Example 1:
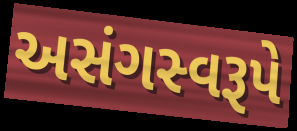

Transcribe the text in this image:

અસંગસ્વરૂપે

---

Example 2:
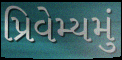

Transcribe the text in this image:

પ્રિવેમ્યમું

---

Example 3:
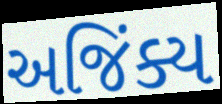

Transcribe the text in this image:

અજિંક્ય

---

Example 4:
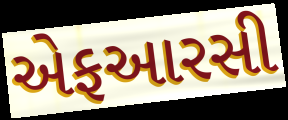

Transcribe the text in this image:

એફઆરસી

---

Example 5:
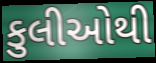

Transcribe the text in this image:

કુલીઓથી